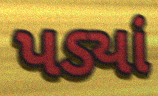
પડ્યાં